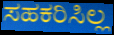
ಸಹಕರಿಸಿಲ್ಲ